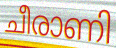
ചീരാണി